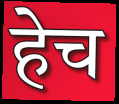
हेच